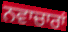
ਨਵਾਚਾਰਾਂ